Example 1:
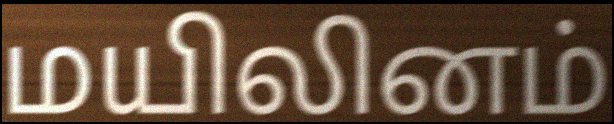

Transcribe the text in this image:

மயிலினம்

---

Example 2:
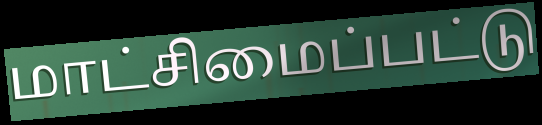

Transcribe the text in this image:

மாட்சிமைப்பட்டு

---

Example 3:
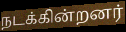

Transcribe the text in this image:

நடக்கின்றனர்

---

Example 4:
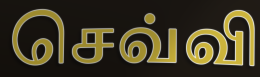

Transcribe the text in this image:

செவ்வி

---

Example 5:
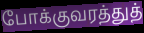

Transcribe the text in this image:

போக்குவரத்துத்